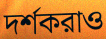
দর্শকরাও